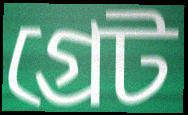
গ্রেট